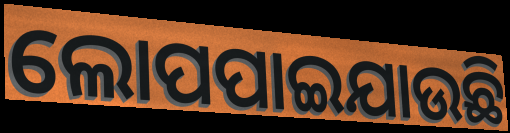
ଲୋପପାଇଯାଉଛି